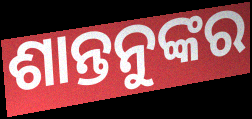
ଶାନ୍ତନୁଙ୍କର